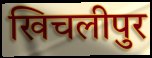
खिचलीपुर